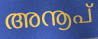
അനൂപ്